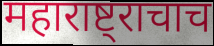
महाराष्ट्राचाच